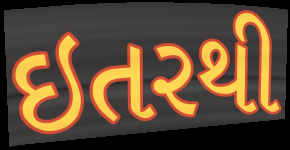
ઇતરથી